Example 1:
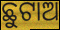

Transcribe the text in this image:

ଛୁଟାଅ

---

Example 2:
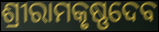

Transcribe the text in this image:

ଶ୍ରୀରାମକୃଷ୍ଣଦେବ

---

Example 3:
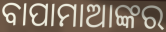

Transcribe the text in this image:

ବାପାମାଆଙ୍କର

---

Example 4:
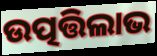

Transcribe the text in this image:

ଉତ୍ପତ୍ତିଲାଭ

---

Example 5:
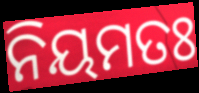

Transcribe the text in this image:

ନିୟମତଃ